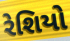
રેશિયો